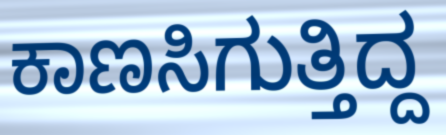
ಕಾಣಸಿಗುತ್ತಿದ್ದ